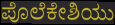
ಪೊಲೆಕೇಶಿಯು